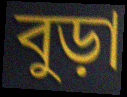
বুড়া